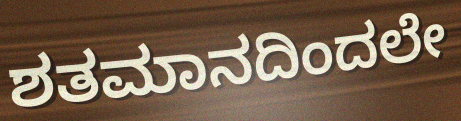
ಶತಮಾನದಿಂದಲೇ